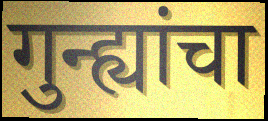
गुन्ह्यांचा